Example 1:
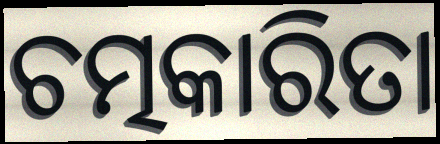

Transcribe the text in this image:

ଚତ୍ମକାରିତା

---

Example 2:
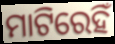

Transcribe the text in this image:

ମାଟିରେହିଁ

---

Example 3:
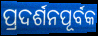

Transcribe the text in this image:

ପ୍ରଦର୍ଶନପୂର୍ବକ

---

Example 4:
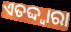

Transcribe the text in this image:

ଏତଦ୍ଦ୍ୱାରା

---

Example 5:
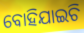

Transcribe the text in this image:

ବୋହିଯାଇଚି